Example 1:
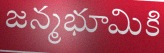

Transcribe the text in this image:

జన్మభూమికి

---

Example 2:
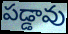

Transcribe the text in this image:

పడ్డావు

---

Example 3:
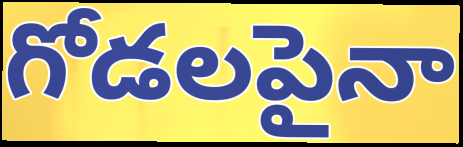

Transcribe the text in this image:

గోడలపైనా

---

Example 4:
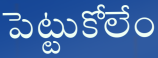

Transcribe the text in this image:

పెట్టుకోలేం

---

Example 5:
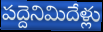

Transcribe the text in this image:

పద్దెనిమిదేళ్లు